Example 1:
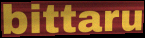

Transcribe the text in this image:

bittaru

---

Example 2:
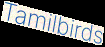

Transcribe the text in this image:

Tamilbirds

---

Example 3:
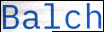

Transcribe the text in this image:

Balch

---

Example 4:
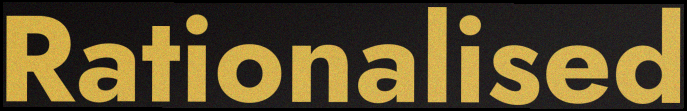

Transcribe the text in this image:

Rationalised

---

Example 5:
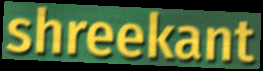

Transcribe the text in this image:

shreekant